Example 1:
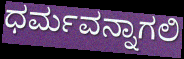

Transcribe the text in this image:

ಧರ್ಮವನ್ನಾಗಲಿ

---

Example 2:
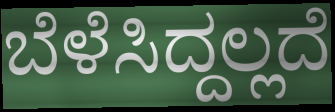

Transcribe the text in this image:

ಬೆಳೆಸಿದ್ದಲ್ಲದೆ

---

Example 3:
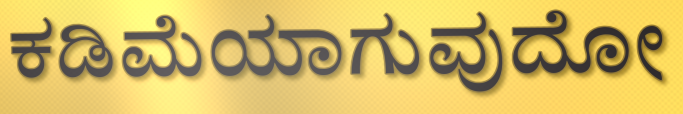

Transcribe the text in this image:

ಕಡಿಮೆಯಾಗುವುದೋ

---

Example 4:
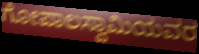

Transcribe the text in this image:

ಗೋಪಾಲಸ್ವಾಮಿಯವರ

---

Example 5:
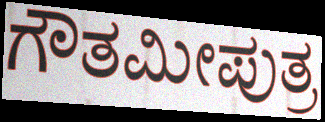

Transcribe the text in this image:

ಗೌತಮೀಪುತ್ರ